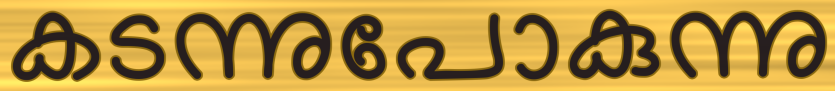
കടന്നുപോകുന്നു